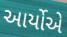
આર્યોએ